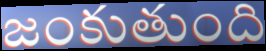
జంకుతుంది